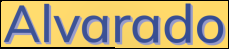
Alvarado